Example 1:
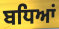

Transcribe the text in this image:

ਬਧਿਆਂ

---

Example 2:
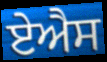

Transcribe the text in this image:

ਏਐਸ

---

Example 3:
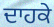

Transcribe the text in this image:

ਦਾਹਕੇ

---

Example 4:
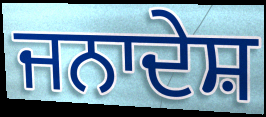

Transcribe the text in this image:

ਜਨਾਦੇਸ਼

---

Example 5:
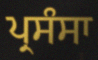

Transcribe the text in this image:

ਪ੍ਰਸੰਸਾ